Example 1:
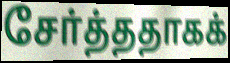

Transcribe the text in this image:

சேர்த்ததாகக்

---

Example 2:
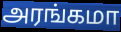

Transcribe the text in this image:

அரங்கமா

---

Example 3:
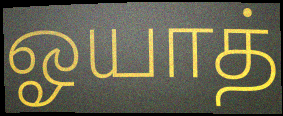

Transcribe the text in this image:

ஓயாத்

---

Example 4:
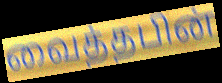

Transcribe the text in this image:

வைத்தபின்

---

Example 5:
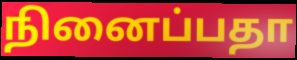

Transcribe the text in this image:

நினைப்பதா